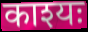
काश्यः